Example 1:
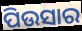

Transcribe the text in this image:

ପିଉସାର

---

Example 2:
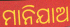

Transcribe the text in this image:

ମାନିଯାଅ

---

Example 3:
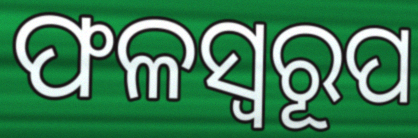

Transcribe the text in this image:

ଫଳସ୍ୱରୂପ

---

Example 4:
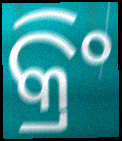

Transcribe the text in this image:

କ୍ରିଂ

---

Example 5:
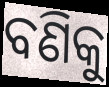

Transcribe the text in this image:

ବଣିକୁ